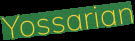
Yossarian